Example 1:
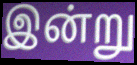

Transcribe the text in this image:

இன்று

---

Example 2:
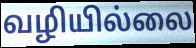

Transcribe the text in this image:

வழியில்லை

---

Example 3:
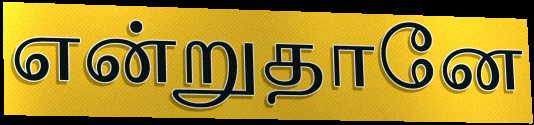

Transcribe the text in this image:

என்றுதானே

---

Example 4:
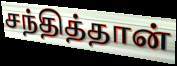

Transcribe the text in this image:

சந்தித்தான்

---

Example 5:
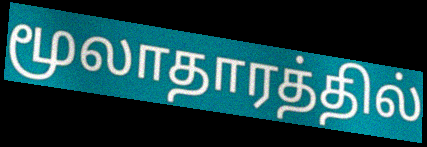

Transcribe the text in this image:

மூலாதாரத்தில்